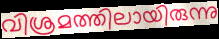
വിശ്രമത്തിലായിരുന്നു